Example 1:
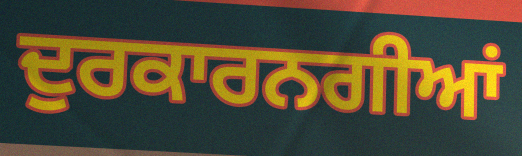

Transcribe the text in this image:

ਦੁਰਕਾਰਨਗੀਆਂ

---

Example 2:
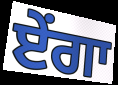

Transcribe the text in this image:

ਏਂਗਾ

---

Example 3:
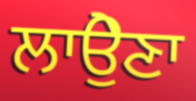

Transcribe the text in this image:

ਲਾਉੇਣਾ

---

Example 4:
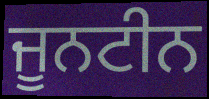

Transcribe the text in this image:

ਜੂਨਟੀਨ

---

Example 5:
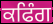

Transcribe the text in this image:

ਕਫਿੰਗ